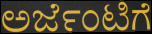
ಅರ್ಜೆಂಟಿಗೆ